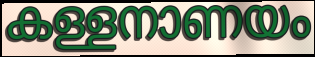
കള്ളനാണയം